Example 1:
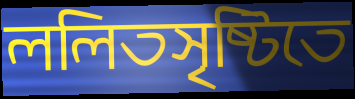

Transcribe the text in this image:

ললিতসৃষ্টিতে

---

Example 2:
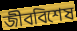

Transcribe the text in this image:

জীববিশেষ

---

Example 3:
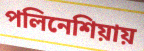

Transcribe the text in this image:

পলিনেশিয়ায়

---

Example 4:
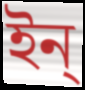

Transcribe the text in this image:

ইন্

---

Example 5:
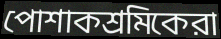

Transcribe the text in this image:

পোশাকশ্রমিকেরা